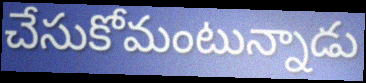
చేసుకోమంటున్నాడు